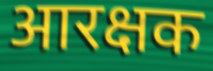
आरक्षक